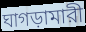
ঘাগড়ামারী